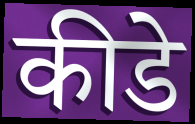
कीडे